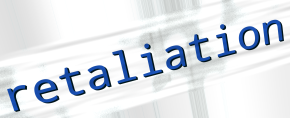
retaliation